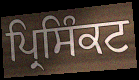
ਪ੍ਰਿਸਿੰਕਟ